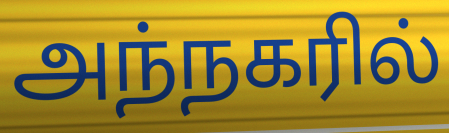
அந்நகரில்